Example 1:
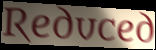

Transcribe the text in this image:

Reduced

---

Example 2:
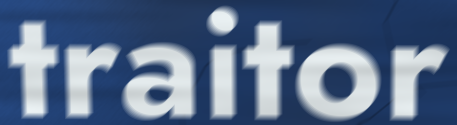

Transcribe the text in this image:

traitor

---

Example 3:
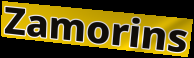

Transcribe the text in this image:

Zamorins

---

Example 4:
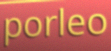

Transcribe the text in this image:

porleo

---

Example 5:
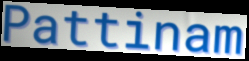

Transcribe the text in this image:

Pattinam